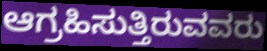
ಆಗ್ರಹಿಸುತ್ತಿರುವವರು